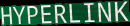
HYPERLINK